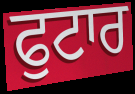
ਫੁਟਾਰ